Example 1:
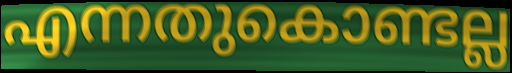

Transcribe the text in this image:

എന്നതുകൊണ്ടല്ല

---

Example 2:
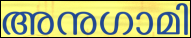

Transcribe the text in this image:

അനുഗാമി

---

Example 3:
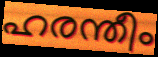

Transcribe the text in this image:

ഹരന്തീം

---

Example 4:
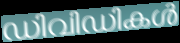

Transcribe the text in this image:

ഡിവിഡികൾ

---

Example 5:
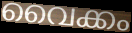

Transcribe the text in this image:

വൈക്കം